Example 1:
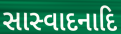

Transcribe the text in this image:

સાસ્વાદનાદિ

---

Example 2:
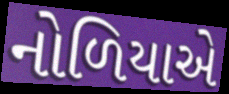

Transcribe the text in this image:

નોળિયાએ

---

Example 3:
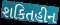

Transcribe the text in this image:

શકિતહીન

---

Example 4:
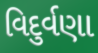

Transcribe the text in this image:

વિદુર્વણા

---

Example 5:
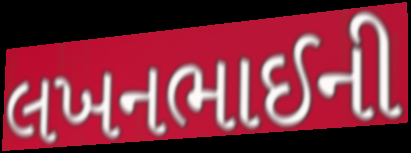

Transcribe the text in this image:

લખનભાઈની